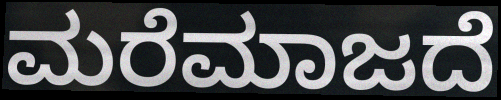
ಮರೆಮಾಜದೆ